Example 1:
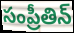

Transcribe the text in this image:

సంప్రీతిన్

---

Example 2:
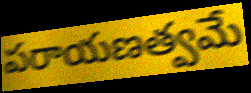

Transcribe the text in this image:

పరాయణత్వమే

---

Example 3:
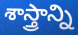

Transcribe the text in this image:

శాస్త్రాన్ని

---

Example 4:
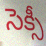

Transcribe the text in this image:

సెక్సీ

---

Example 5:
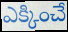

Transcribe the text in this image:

ఎక్కించే